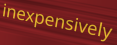
inexpensively